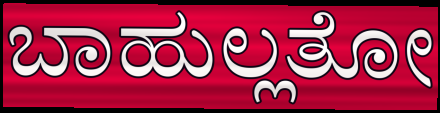
ಬಾಹುಲ್ಲತೋ